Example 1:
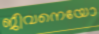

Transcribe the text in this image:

ജീവനെയോ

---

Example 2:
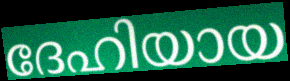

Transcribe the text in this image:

ദേഹിയായ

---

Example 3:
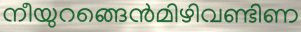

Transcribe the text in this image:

നീയുറങ്ങെൻമിഴിവണ്ടിണ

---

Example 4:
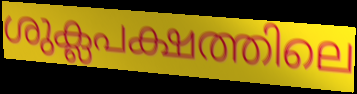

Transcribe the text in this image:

ശുക്ലപക്ഷത്തിലെ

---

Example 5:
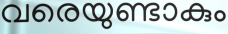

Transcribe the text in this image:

വരെയുണ്ടാകും